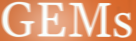
GEMs